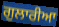
ਗੁਲਾਰੀਆ